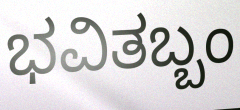
ಭವಿತಬ್ಬಂ